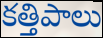
కత్తిపాలు